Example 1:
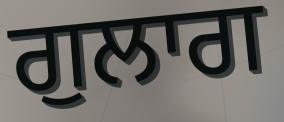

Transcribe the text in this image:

ਗੁਲਾਗ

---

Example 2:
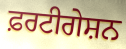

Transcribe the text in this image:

ਫ਼ਰਟੀਗੇਸ਼ਨ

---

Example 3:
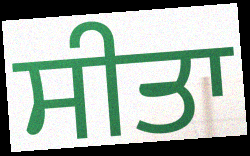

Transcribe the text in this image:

ਸੀਤਾ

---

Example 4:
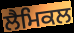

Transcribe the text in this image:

ਲੈਮਿਕਲ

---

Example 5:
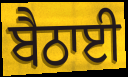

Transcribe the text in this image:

ਬੈਠਾਈ